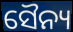
ସୈନ୍ୟ